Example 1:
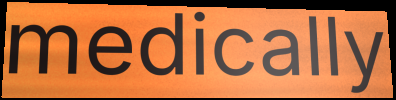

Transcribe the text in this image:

medically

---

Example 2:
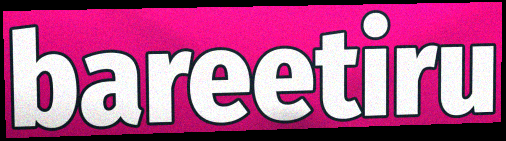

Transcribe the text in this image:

bareetiru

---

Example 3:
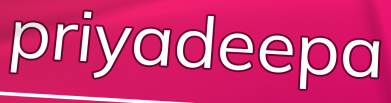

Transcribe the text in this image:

priyadeepa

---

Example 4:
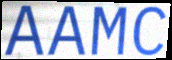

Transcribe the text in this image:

AAMC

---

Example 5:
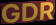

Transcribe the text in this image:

GDR